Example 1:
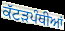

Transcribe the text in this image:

ਕੱਟੜਪੰਥੀਆਂ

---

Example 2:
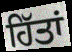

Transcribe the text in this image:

ਹਿੱਤਾਂ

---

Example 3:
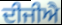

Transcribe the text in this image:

ਦੀਜੀਐ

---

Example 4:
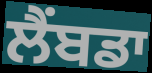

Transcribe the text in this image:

ਲੈਂਬਡਾ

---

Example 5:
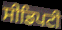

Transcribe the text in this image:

ਸੀਡਿਪਟੀ